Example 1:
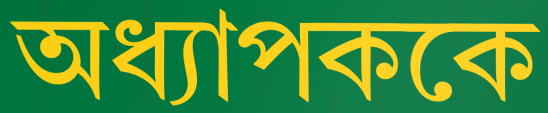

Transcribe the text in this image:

অধ্যাপককে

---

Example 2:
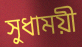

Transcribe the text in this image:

সুধাময়ী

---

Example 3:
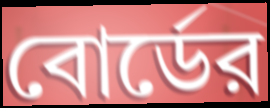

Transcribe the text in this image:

বোর্ডের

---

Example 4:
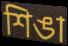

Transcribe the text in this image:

শিঙা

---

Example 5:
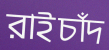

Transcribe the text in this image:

রাইচাঁদ